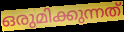
ഒരുമിക്കുന്നത്